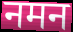
नमन